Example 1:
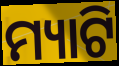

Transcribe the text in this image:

ମ୍ୟାଟି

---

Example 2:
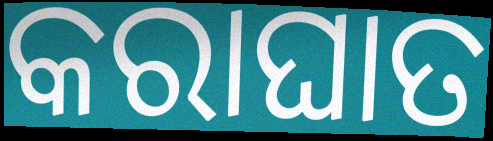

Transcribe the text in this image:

କରାଘାତ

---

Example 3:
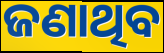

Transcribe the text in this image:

ଜଣାଥିବ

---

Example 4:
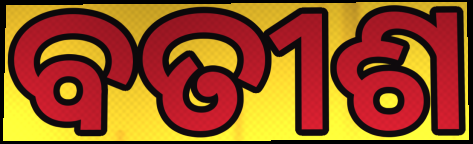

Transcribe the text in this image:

ବତୀଶ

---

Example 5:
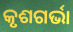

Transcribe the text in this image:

କୃଶଗର୍ଭା